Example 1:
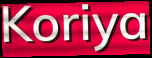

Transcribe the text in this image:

Koriya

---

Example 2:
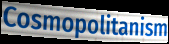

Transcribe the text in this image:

Cosmopolitanism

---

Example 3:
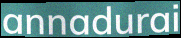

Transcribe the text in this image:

annadurai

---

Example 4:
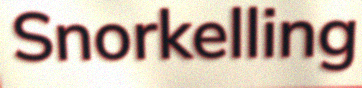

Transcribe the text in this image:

Snorkelling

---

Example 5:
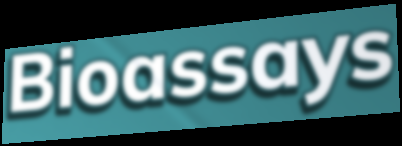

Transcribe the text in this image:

Bioassays